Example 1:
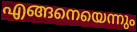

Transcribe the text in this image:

എങ്ങനെയെന്നും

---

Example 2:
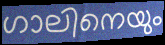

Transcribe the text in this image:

ഗാലിനെയും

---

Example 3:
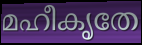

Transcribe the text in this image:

മഹീകൃതേ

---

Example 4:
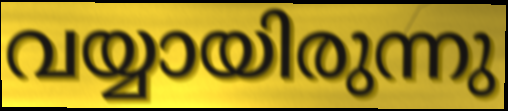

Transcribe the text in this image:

വയ്യായിരുന്നു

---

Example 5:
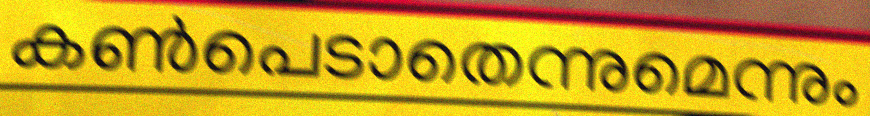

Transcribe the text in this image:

കൺപെടാതെന്നുമെന്നും